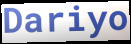
Dariyo